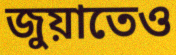
জুয়াতেও